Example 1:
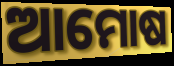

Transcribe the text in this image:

ଆମୋଷ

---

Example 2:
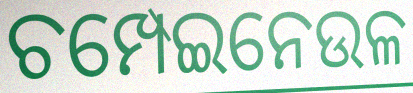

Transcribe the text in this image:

ଚମ୍ପେଇନେଉଳ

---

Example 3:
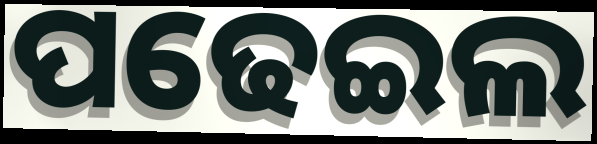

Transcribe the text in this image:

ପଢେଇଲ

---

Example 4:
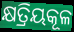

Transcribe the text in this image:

କ୍ଷତ୍ରିୟକୂଳ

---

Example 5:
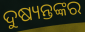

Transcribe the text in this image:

ଦୁଷ୍ୟନ୍ତଙ୍କର